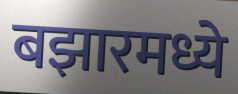
बझारमध्ये